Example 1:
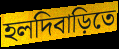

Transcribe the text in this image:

হলদিবাড়িতে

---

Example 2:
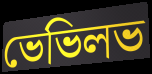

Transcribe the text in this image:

ভেভিলভ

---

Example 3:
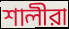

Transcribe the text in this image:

শালীরা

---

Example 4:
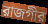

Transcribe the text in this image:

রাজগীর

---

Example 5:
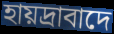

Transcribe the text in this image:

হায়দ্রাবাদে